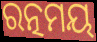
ରତ୍ନମୟ